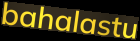
bahalastu